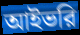
আইভরি